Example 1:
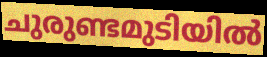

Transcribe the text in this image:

ചുരുണ്ടമുടിയിൽ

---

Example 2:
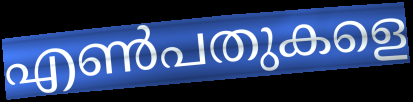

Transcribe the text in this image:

എൺപതുകളെ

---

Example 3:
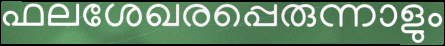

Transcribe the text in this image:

ഫലശേഖരപ്പെരുന്നാളും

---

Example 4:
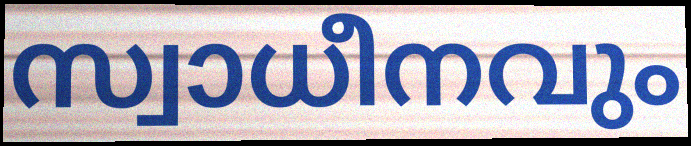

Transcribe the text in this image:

സ്വാധീനവും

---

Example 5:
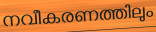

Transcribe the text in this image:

നവീകരണത്തിലും